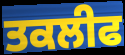
ਤਕਲੀਫ